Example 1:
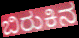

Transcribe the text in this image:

ಬಿರುಕಿನ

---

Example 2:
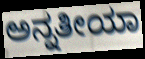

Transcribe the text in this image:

ಅನ್ನತೀಯಾ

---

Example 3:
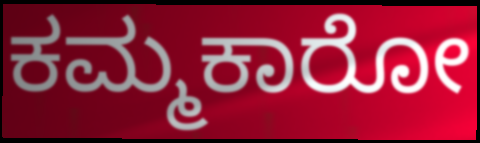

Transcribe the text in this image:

ಕಮ್ಮಕಾರೋ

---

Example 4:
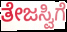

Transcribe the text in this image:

ತೇಜಸ್ವಿಗೆ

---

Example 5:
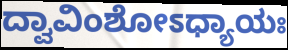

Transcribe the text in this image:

ದ್ವಾವಿಂಶೋಽಧ್ಯಾಯಃ